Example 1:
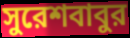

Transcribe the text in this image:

সুরেশবাবুর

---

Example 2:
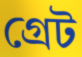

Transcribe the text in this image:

গ্রেট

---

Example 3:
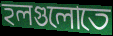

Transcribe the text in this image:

হলগুলোতে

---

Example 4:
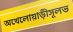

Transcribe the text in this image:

অখেলোয়াড়ীসূলভ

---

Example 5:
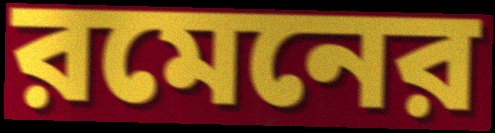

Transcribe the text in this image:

রমেনের